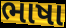
ભાષા